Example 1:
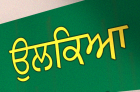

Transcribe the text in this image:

ਉਲਕਿਆ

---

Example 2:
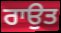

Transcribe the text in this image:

ਰਾਉਤ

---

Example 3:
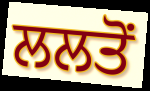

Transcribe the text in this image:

ਲਲਤੋਂ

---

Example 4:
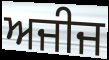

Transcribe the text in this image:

ਅਜੀਜ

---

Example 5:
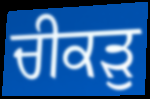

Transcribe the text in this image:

ਚੀਕੜੁ